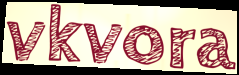
vkvora